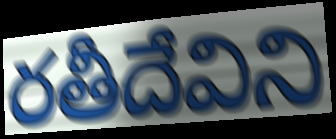
రతీదేవిని